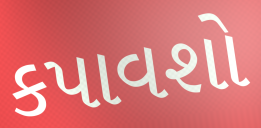
કપાવશો